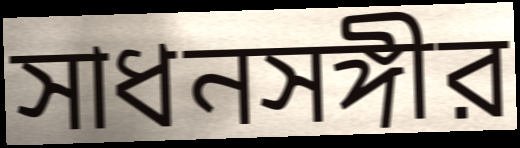
সাধনসঙ্গীর